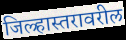
जिल्हास्तरावरील